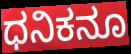
ಧನಿಕನೂ